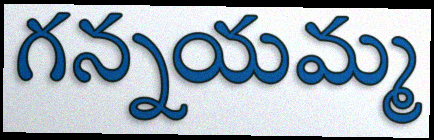
గన్నయమ్మ